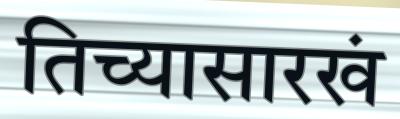
तिच्यासारखं